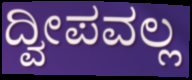
ದ್ವೀಪವಲ್ಲ